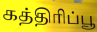
கத்திரிப்பூ